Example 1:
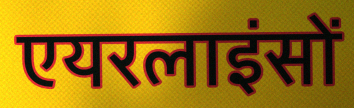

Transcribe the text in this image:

एयरलाइंसों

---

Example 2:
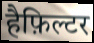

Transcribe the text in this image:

हैफ़िल्टर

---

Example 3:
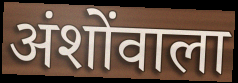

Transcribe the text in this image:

अंशोंवाला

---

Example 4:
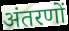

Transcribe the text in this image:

अंतरणों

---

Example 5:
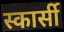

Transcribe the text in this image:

स्कार्सी